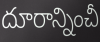
దూరాన్నించీ